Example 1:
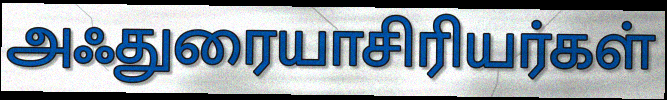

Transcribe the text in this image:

அஃதுரையாசிரியர்கள்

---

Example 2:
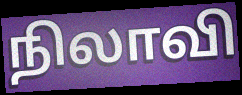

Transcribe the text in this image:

நிலாவி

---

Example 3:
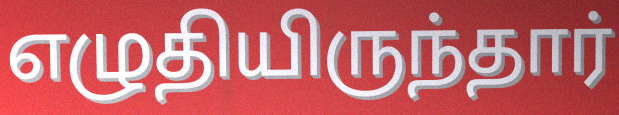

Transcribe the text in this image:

எழுதியிருந்தார்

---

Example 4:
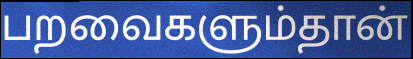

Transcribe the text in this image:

பறவைகளும்தான்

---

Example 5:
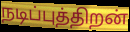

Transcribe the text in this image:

நடிப்புத்திறன்